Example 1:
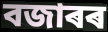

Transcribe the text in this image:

বজাৰৰ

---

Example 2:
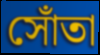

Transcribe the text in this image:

সোঁতা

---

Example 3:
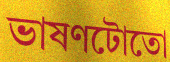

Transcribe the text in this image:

ভাষণটোতো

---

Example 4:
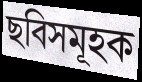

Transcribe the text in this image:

ছবিসমূহক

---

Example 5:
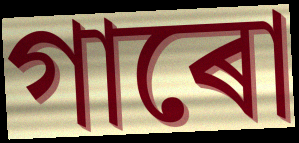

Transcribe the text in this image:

গাৰো